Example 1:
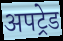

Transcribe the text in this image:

अपट्रेड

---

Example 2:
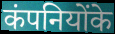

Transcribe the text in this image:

कंपनियोंके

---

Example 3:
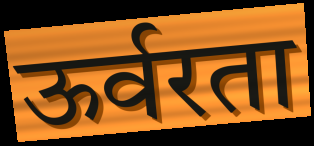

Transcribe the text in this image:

ऊर्वरता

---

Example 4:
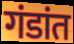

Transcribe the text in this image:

गंडांत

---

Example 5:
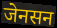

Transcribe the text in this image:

जेनसन